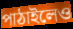
পাঠাইলেও